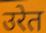
उरेत